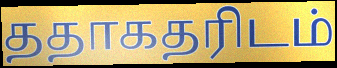
ததாகதரிடம்